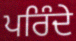
ਪਰਿੰਦੇ